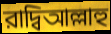
রাদ্বিআল্লাহু